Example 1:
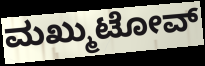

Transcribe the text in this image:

ಮಖ್ಮುಟೋವ್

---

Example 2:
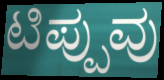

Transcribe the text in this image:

ಟಿಪ್ಪುವು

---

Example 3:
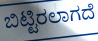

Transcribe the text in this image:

ಬಿಟ್ಟಿರಲಾಗದೆ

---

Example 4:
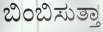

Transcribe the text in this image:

ಬಿಂಬಿಸುತ್ತಾ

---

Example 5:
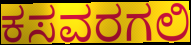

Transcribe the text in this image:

ಕಸವರಗಲಿ